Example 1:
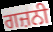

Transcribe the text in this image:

ਗਜ਼ਨੀ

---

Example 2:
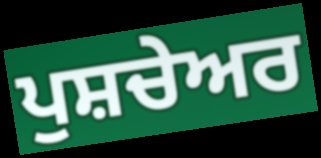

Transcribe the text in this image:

ਪੁਸ਼ਚੇਅਰ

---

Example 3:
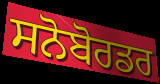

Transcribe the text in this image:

ਸਨੋਬੋਰਡਰ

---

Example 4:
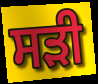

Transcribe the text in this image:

ਸੜੀ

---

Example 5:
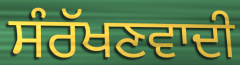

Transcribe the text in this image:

ਸੰਰੱਖਣਵਾਦੀ